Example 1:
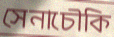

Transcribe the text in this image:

সেনাচৌকি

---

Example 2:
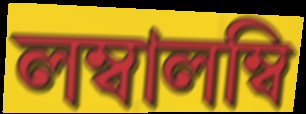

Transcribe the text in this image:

লম্বালম্বি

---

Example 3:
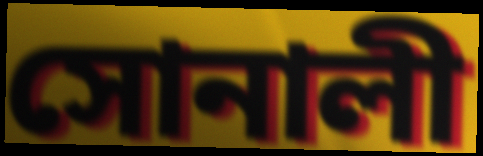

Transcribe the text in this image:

সোনালী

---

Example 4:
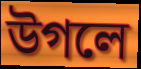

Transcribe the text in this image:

উগলে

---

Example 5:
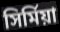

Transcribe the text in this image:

সির্মিয়া